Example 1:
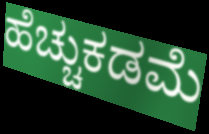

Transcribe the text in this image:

ಹೆಚ್ಚುಕಡಮೆ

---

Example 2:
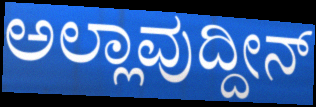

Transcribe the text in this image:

ಅಲ್ಲಾವುದ್ದೀನ್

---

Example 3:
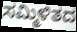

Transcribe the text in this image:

ಸಮ್ಮಿಳಿತದ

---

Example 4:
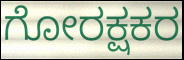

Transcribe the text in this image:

ಗೋರಕ್ಷಕರ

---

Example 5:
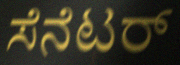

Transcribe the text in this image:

ಸೆನೆಟರ್